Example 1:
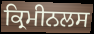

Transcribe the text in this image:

ਕ੍ਰਿਮੀਨਲਸ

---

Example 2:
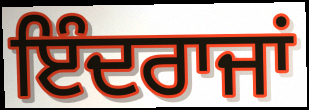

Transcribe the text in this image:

ਇੰਦਰਾਜਾਂ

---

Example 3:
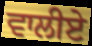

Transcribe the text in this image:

ਵਾਲੀਏ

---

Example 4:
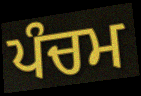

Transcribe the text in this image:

ਪੰਚਮ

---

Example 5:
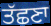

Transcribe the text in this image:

ਤੱਛਣਾ